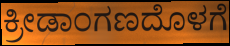
ಕ್ರೀಡಾಂಗಣದೊಳಗೆ